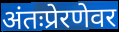
अंतःप्रेरणेवर